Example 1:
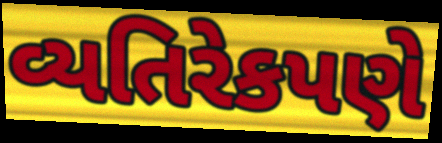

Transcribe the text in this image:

વ્યતિરેકપણે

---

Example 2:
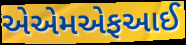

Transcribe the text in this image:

એએમએફઆઈ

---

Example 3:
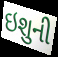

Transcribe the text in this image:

ઇશુની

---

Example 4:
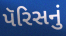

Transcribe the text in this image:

પૅરિસનું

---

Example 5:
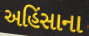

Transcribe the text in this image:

અહિંસાના